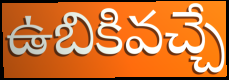
ఉబికివచ్చే